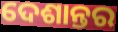
ଦେଶାନ୍ତର